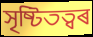
সৃষ্টিতত্বৰ